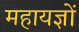
महायज्ञों